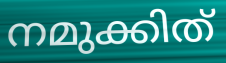
നമുക്കിത്